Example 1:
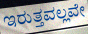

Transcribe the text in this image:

ಇರುತ್ತವಲ್ಲವೇ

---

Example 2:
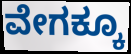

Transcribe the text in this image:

ವೇಗಕ್ಕೂ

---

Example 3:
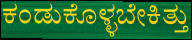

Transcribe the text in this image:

ಕಂಡುಕೊಳ್ಳಬೇಕಿತ್ತು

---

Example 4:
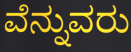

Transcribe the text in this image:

ವೆನ್ನುವರು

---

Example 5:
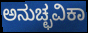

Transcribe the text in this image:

ಅನುಚ್ಛವಿಕಾ